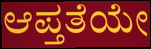
ಆಪ್ತತೆಯೇ